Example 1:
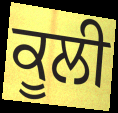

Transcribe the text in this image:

ਕੂਲੀ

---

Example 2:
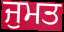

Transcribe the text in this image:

ਜੁਮਤ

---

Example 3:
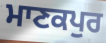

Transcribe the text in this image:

ਮਾਣਕਪੁਰ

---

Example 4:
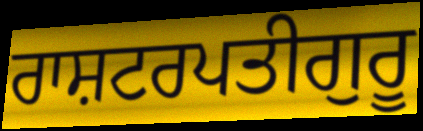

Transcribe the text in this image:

ਰਾਸ਼ਟਰਪਤੀਗੁਰੂ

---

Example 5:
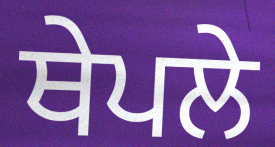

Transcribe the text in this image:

ਥੇਪਲੇ